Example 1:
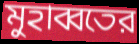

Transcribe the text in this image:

মুহাব্বতের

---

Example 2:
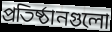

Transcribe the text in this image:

প্রতিষ্ঠানগুলো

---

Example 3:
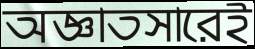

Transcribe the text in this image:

অজ্ঞাতসারেই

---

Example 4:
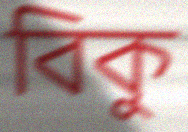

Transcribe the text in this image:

বিকু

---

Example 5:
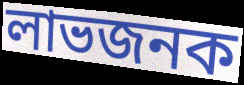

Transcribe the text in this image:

লাভজনক